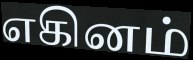
எகினம்